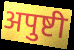
अपुष्टी